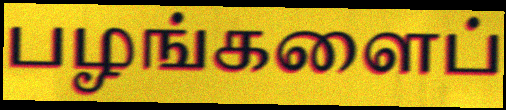
பழங்களைப்